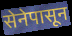
सेनेपासून